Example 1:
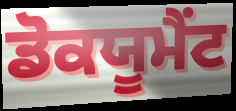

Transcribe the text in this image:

ਡੋਕਯੂਮੈਂਟ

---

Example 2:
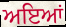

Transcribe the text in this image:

ਅਇਆਂ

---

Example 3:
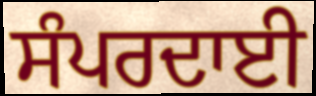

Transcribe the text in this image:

ਸੰਪਰਦਾਈ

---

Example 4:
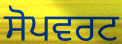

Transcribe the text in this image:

ਸੋਪਵਰਟ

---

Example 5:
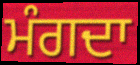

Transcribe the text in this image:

ਮੰਗਦਾ